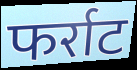
फर्राट